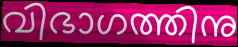
വിഭാഗത്തിനു